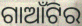
ଗାଆଁଟିର